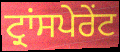
ਟ੍ਰਾਂਸਪੇਰੇਂਟ